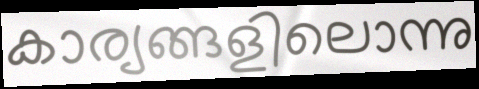
കാര്യങ്ങളിലൊന്നു